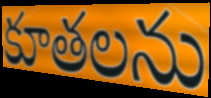
కూతలను